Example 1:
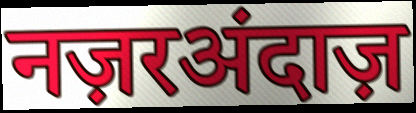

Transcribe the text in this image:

नज़रअंदाज़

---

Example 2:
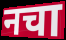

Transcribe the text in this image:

नचा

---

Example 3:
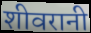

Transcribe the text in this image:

शीवरानी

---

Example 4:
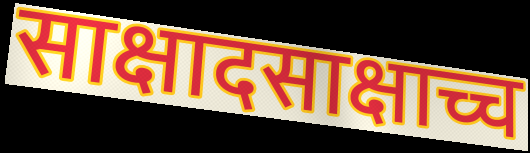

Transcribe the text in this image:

साक्षादसाक्षाच्च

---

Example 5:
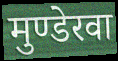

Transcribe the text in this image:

मुण्डेरवा